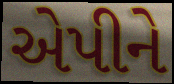
એપીને